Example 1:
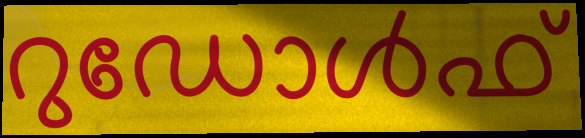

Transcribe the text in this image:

റുഡോൾഫ്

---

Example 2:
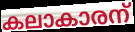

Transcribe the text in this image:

കലാകാരന്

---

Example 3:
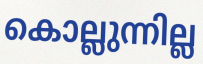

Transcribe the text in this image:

കൊല്ലുന്നില്ല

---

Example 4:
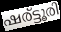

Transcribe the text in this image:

ഷര്ട്ടൂരി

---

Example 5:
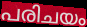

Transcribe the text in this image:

പരിചയം